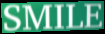
SMILE